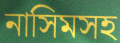
নাসিমসহ